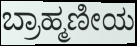
ಬ್ರಾಹ್ಮಣೀಯ